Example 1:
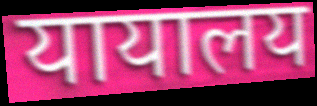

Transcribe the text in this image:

यायालय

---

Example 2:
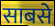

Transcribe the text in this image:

साबसे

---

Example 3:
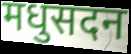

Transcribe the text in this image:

मधुसदन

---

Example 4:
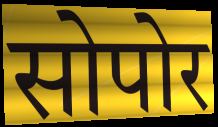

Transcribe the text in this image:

सोपोर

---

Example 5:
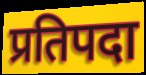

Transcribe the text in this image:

प्रतिपदा